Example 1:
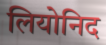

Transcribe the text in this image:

लियोनिद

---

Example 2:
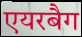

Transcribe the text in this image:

एयरबैग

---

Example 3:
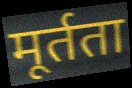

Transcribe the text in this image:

मूर्तता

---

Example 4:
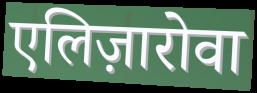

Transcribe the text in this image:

एलिज़ारोवा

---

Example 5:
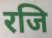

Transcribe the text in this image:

रजि